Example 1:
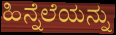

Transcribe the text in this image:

ಹಿನ್ನೆಲೆಯನ್ನು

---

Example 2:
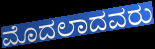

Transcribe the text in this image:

ಮೊದಲಾದವರು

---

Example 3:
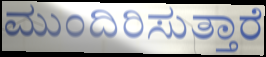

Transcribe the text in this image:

ಮುಂದಿರಿಸುತ್ತಾರೆ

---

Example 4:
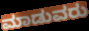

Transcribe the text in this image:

ಮಾಡುವರು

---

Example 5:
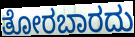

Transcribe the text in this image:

ತೋರಬಾರದು